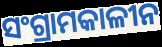
ସଂଗ୍ରାମକାଳୀନ